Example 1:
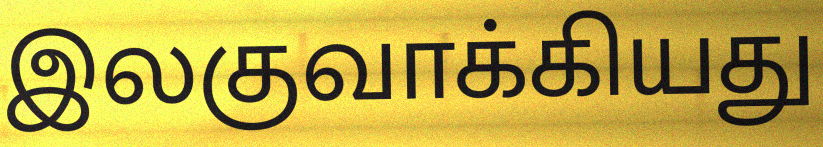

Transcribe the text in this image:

இலகுவாக்கியது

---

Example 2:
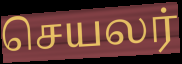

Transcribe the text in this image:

செயலர்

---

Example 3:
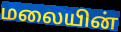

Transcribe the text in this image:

மலையின்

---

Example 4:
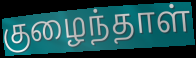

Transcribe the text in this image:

குழைந்தாள்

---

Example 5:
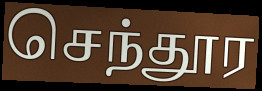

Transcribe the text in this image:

செந்தூர